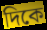
দিকে